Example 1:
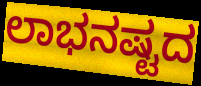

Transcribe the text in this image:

ಲಾಭನಷ್ಟದ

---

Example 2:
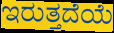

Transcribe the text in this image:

ಇರುತ್ತದೆಯೆ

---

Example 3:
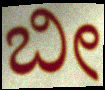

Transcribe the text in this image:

ಬೀ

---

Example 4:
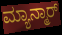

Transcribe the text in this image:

ಮ್ಯಾನ್ಮಾರ್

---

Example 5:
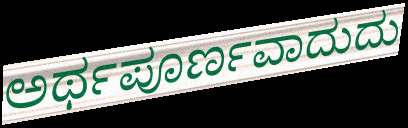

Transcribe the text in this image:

ಅರ್ಥಪೂರ್ಣವಾದುದು